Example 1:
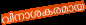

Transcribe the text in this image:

വിനാശകരമായ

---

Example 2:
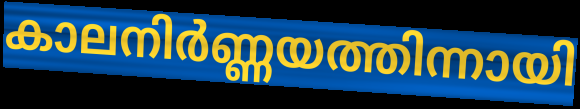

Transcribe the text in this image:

കാലനിർണ്ണയത്തിന്നായി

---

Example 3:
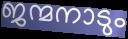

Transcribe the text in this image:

ജന്മനാടും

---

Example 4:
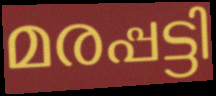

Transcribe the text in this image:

മരപ്പട്ടി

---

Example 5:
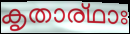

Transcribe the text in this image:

കൃതാര്ഥാഃ